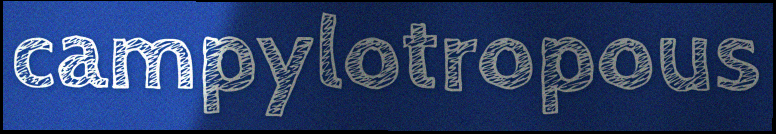
campylotropous